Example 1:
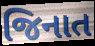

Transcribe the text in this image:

જિનાત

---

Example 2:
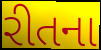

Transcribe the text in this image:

રીતના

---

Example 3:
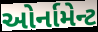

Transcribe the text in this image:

ઓર્નામેન્ટ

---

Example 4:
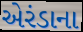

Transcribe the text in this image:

એરંડાના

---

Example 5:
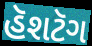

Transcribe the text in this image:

હૅશટૅગ